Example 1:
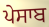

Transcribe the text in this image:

ਪੇਸਾਬ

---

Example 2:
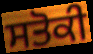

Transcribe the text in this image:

ਸਤੋਕੀ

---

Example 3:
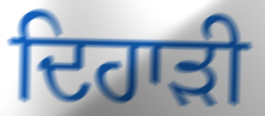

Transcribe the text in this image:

ਦਿਹਾੜੀ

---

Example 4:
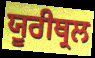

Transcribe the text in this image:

ਯੂਰੀਥ੍ਰਲ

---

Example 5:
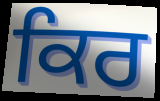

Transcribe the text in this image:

ਕਿਰ